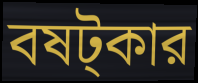
বষট্কার